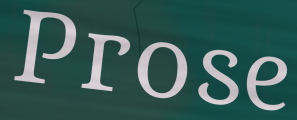
Prose